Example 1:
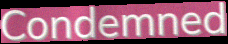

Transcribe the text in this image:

Condemned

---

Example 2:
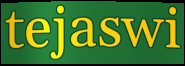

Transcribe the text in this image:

tejaswi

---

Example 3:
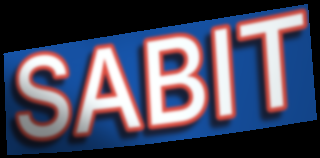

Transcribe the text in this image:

SABIT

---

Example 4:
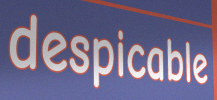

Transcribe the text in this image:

despicable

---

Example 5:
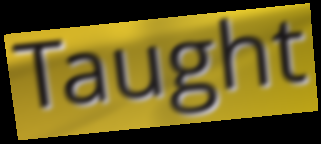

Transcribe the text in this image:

Taught